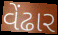
વેંઢાર